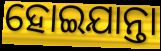
ହୋଇଯାନ୍ତା